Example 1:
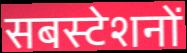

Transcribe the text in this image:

सबस्टेशनों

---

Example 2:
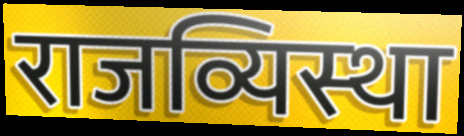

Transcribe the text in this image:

राजव्यिस्था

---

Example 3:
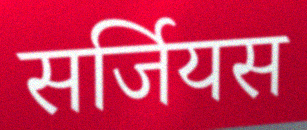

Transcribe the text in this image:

सर्जियस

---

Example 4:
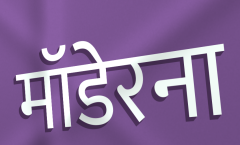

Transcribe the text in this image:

मॉडेरना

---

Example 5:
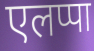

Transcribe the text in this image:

एलप्पा